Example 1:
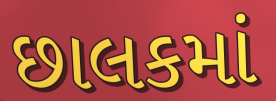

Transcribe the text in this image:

છાલકમાં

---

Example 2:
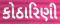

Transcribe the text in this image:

કોઠારિણી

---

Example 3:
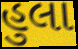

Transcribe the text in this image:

હુલા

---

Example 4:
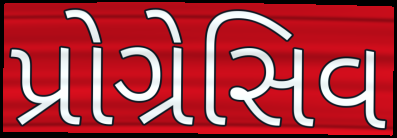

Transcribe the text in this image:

પ્રોગ્રેસિવ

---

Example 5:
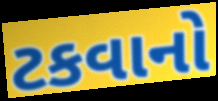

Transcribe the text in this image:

ટકવાનો